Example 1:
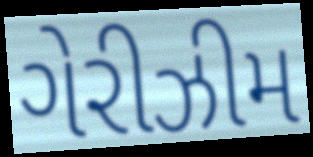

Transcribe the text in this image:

ગેરીઝીમ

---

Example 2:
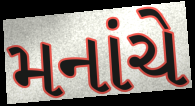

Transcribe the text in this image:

મનાંચે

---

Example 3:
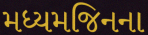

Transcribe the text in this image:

મધ્યમજિનના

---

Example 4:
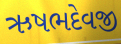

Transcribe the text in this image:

ઋષભદેવજી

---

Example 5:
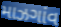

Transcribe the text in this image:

માઝગાંવ